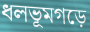
ধলভূমগড়ে